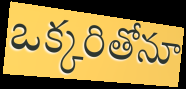
ఒక్కరితోనూ